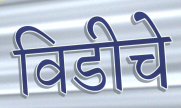
विडीचे